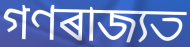
গণৰাজ্যত